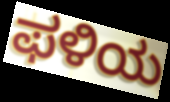
ಫಳಿಯ